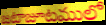
జటాజూటములో